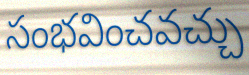
సంభవించవచ్చు